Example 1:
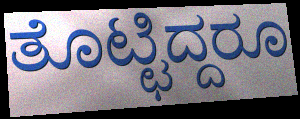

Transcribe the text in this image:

ತೊಟ್ಟಿದ್ದರೂ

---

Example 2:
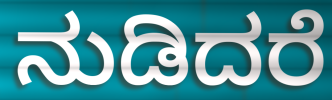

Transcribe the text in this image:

ನುಡಿದರೆ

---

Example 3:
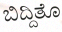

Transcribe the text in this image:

ಬಿದ್ದಿತೊ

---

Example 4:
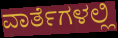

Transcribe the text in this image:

ವಾರ್ತೆಗಳಲ್ಲಿ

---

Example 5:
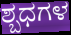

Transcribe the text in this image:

ಶ್ಬಧಗಳ